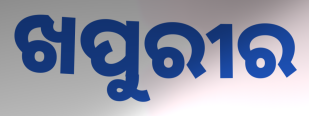
ଖପୁରୀର